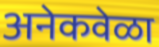
अनेकवेळा